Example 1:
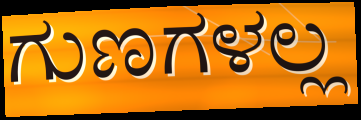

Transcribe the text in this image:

ಗುಣಗಳಲ್ಲ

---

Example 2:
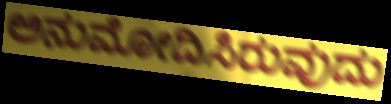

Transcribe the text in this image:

ಅನುಮೋದಿಸಿರುವುದು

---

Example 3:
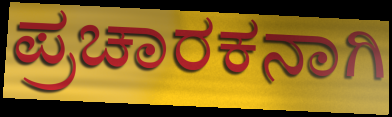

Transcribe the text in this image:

ಪ್ರಚಾರಕನಾಗಿ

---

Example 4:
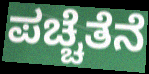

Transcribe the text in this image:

ಪಚ್ಚೆತೆನೆ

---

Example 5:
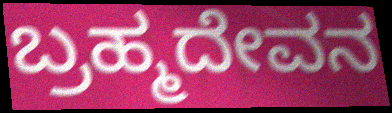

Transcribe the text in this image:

ಬ್ರಹ್ಮದೇವನ